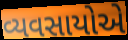
વ્યવસાયોએ